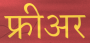
फ्रीअर